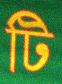
টি